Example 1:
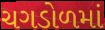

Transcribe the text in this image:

ચગડોળમાં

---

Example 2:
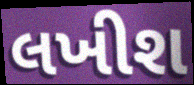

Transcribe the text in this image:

લખીશ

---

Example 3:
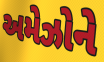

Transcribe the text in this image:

અમેઝોને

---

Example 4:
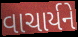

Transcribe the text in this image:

વાચાર્યને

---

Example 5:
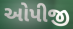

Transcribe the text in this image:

ઓપીજી